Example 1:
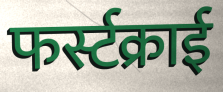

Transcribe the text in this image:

फर्स्टक्राई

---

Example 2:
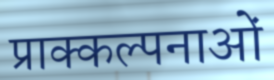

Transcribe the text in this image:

प्राक्कल्पनाओं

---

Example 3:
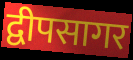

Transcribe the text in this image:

द्वीपसागर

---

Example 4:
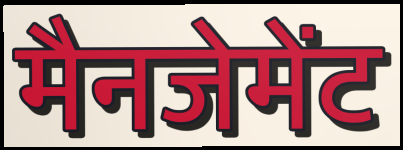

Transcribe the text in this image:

मैनजेमेंट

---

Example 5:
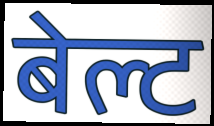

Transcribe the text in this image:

बेल्‍ट